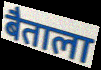
बैताला